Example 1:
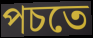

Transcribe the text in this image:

পচতে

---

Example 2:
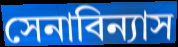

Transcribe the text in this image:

সেনাবিন্যাস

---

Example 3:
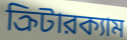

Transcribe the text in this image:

ক্রিটারক্যাম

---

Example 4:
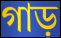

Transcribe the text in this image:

গাড়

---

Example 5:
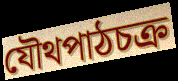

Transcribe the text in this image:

যৌথপাঠচক্র